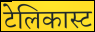
टेलिकास्ट